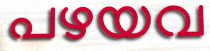
പഴയവ